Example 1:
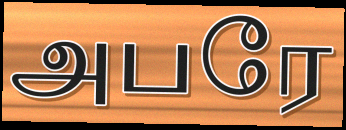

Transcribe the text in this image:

அபரே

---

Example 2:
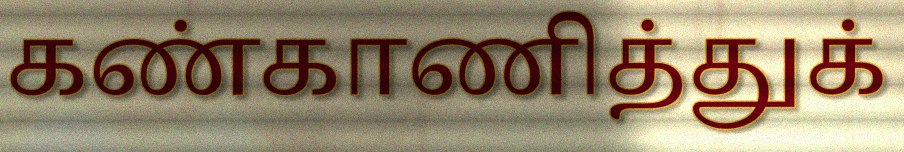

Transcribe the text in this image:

கண்காணித்துக்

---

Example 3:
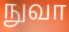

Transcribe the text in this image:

நுவா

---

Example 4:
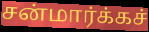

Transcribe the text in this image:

சன்மார்க்கச்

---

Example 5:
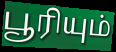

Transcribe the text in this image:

பூரியும்